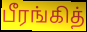
பீரங்கித்